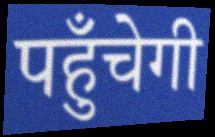
पहुँचेगी